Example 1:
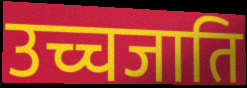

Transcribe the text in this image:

उच्चजाति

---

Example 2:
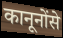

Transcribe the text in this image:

कानूनोंसे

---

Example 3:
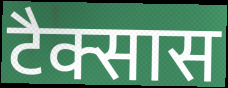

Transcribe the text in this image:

टैक्सास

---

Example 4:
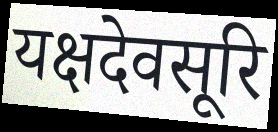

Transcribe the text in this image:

यक्षदेवसूरि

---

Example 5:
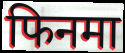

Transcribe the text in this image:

फिनमा